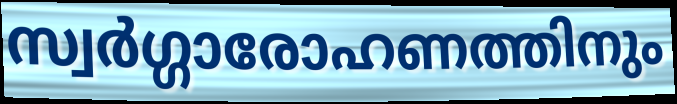
സ്വർഗ്ഗാരോഹണത്തിനും